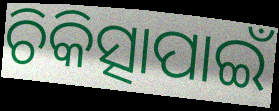
ଚିକିତ୍ସାପାଇଁ